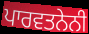
ਪਾਰਵਤਨੇਨੀ